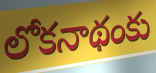
లోకనాథంకు